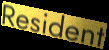
Resident